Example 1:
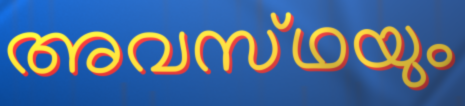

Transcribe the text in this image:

അവസ്‌ഥയും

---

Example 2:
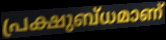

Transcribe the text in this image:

പ്രക്ഷുബ്ധമാണ്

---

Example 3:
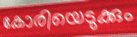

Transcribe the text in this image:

കോരിയെടുക്കും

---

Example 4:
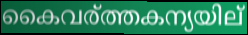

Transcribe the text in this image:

കൈവര്ത്തകന്യയില്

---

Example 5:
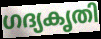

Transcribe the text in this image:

ഗദ്യകൃതി